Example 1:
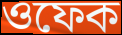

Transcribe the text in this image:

ওফেক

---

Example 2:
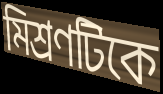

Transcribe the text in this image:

মিশ্রণটিকে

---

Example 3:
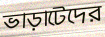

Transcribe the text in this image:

ভাড়াটেদের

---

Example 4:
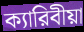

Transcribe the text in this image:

ক্যারিবীয়া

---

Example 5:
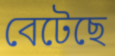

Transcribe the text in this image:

বেটেছে